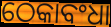
ଠେକାବଂଧା